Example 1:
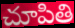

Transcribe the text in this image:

చూపితి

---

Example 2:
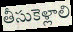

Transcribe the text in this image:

తీసుకెళ్లాలి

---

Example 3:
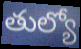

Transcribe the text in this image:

తుల్యో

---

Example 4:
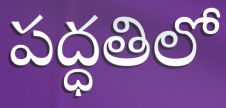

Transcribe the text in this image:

పద్ధతిలో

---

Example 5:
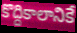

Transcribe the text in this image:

కొద్దికాలానికే